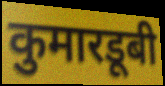
कुमारडूबी